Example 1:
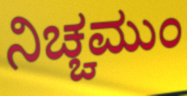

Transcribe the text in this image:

ನಿಚ್ಚಮುಂ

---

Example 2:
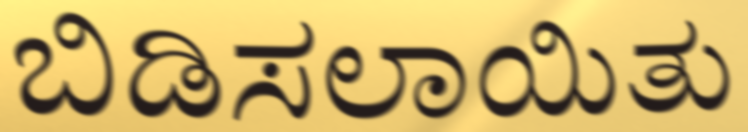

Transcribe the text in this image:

ಬಿಡಿಸಲಾಯಿತು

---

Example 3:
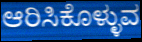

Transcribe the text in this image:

ಆರಿಸಿಕೊಳ್ಳುವ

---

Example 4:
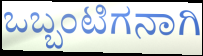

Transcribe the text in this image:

ಒಬ್ಬಂಟಿಗನಾಗಿ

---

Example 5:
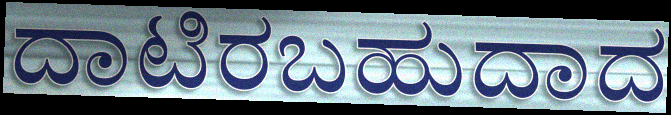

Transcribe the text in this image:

ದಾಟಿರಬಹುದಾದ